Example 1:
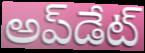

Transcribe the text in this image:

అప్‌డేట్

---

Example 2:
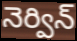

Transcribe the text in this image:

నెర్విన్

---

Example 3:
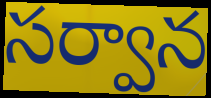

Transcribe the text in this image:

సర్వాన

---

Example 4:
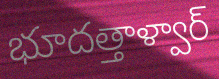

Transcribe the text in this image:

భూదత్తాళ్వార్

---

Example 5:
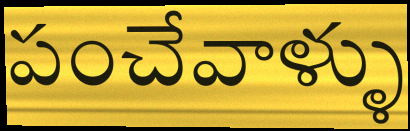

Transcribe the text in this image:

పంచేవాళ్ళు